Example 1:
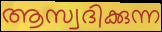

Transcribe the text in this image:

ആസ്വദിക്കുന്ന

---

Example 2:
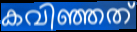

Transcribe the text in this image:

കവിഞ്ഞത്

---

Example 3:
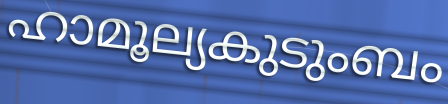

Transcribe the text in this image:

ഹാമൂല്യകുടുംബം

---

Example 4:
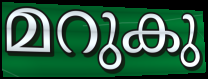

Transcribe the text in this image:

മറുകു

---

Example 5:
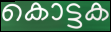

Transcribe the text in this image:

കൊട്ടക